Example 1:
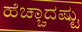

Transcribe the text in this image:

ಹೆಚ್ಚಾದಷ್ಟು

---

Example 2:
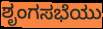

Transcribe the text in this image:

ಶೃಂಗಸಭೆಯು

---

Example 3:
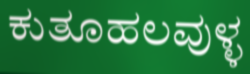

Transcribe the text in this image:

ಕುತೂಹಲವುಳ್ಳ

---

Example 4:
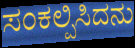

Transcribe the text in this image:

ಸಂಕಲ್ಪಿಸಿದನು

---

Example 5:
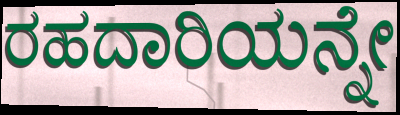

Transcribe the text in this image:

ರಹದಾರಿಯನ್ನೇ